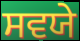
ਸਵਯੇ